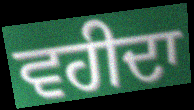
ਵਹੀਦਾ